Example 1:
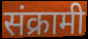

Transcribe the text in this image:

संक्रामी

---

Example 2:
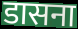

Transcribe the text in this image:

डासना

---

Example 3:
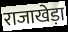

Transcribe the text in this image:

राजाखेड़ा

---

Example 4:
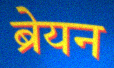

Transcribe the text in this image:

ब्रेयन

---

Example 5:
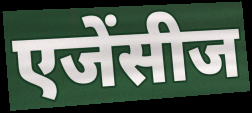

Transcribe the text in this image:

एजेंसीज